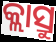
କ୍ଲାସ୍ରୁ